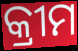
କ୍ରୀମ